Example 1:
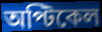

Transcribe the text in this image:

অপ্টিকেল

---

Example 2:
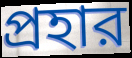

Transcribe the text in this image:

প্রহার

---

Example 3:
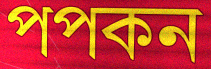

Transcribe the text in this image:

পপকন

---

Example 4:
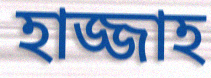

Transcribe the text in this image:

হাজ্জাহ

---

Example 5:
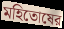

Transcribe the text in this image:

মহিতোষের